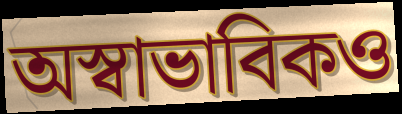
অস্বাভাবিকও